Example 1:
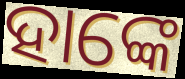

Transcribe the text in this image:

ହାଙ୍କେ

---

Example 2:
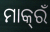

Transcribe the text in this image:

ମାକ୍‌ରଁ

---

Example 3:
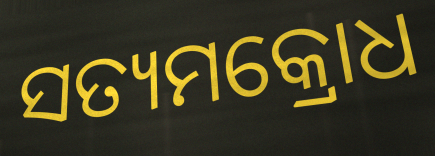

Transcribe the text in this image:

ସତ୍ୟମକ୍ରୋଧ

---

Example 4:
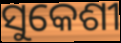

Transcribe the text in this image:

ସୁକେଶୀ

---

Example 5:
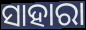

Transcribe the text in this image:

ସାହାରା